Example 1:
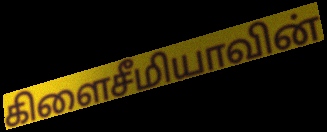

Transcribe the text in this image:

கிளைசீமியாவின்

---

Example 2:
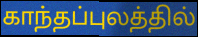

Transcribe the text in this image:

காந்தப்புலத்தில்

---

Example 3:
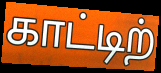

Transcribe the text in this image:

காட்டிற்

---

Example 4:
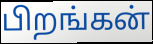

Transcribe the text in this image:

பிறங்கன்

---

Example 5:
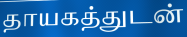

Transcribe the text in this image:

தாயகத்துடன்